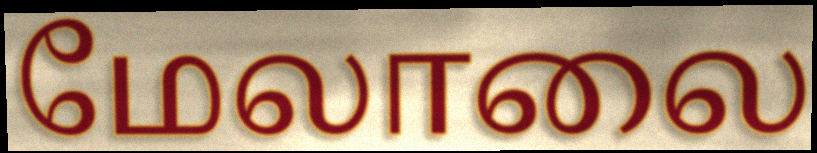
மேலாலை